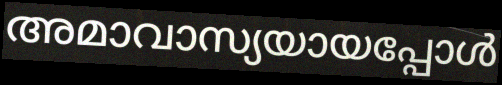
അമാവാസ്യയായപ്പോൾ